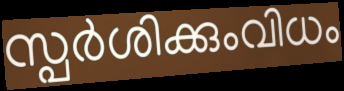
സ്പർശിക്കുംവിധം